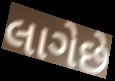
લાગેછે